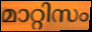
മാറ്റിസം